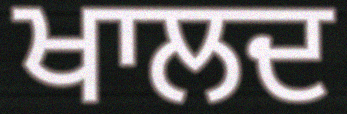
ਖਾਲਦ